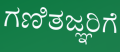
ಗಣಿತಜ್ಞರಿಗೆ